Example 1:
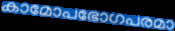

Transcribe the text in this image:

കാമോപഭോഗപരമാ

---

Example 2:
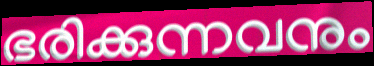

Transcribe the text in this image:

ഭരിക്കുന്നവനും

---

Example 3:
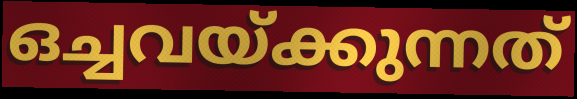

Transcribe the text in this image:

ഒച്ചവയ്ക്കുന്നത്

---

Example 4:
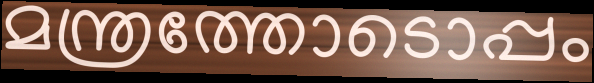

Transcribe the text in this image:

മന്ത്രത്തോടൊപ്പം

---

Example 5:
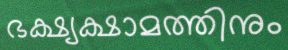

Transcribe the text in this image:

ഭക്ഷ്യക്ഷാമത്തിനും